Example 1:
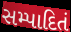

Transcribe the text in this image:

સમ્પાદિતં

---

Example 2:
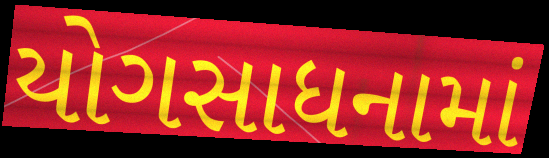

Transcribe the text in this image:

યોગસાધનામાં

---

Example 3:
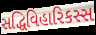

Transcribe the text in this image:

સદ્ધિવિહારિકસ્સ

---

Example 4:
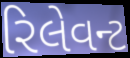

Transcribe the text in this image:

રિલેવન્ટ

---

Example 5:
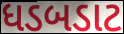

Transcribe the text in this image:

ધડબડાટ